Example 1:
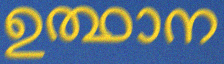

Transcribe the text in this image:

ഉത്ഥാന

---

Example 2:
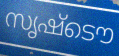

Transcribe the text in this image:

സൃഷ്ടൌ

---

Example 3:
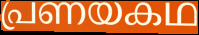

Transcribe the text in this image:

പ്രണയകഥ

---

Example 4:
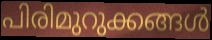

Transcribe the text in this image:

പിരിമുറുക്കങ്ങൾ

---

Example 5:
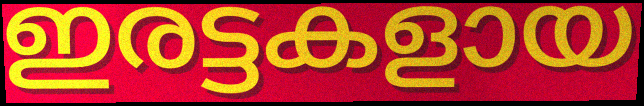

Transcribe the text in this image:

ഇരട്ടകളായ